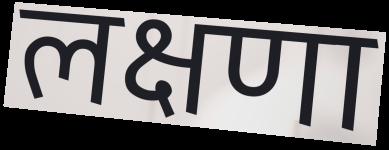
लक्षणा